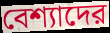
বেশ্যাদের